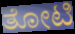
ತೋಟಿ